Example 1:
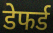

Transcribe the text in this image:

डेफर्ड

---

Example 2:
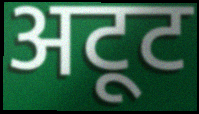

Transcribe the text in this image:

अटूट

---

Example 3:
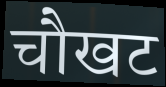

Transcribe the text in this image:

चौखट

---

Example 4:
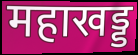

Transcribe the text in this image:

महाखड्ड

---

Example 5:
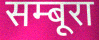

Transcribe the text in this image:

सम्बूरा